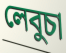
লেবুচা